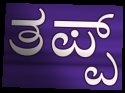
ತಪ್ಪ್